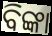
ବିଙ୍କା